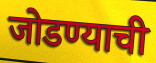
जोडण्याची